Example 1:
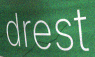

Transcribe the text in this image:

drest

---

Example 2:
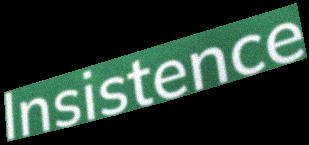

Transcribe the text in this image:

Insistence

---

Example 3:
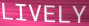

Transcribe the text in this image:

LIVELY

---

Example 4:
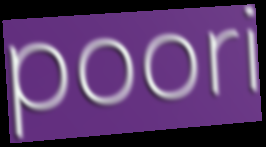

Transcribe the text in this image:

poori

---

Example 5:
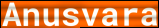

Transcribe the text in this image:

Anusvara